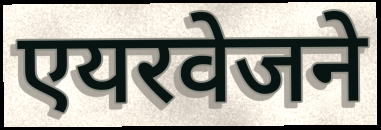
एयरवेजने